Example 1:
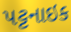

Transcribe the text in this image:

પટ્ટનાઇક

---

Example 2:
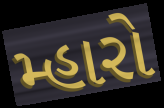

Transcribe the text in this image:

મ્હારો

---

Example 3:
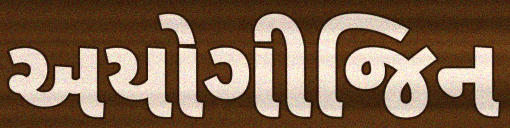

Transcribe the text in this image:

અયોગીજિન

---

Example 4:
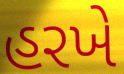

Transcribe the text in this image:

હરખે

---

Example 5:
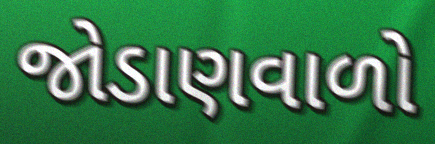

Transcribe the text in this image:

જોડાણવાળો